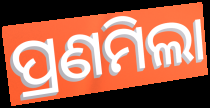
ପ୍ରଣମିଲା